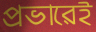
প্ৰভাৱেই